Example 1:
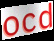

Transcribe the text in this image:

ocd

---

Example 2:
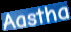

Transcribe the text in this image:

Aastha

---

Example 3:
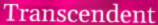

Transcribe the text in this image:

Transcendent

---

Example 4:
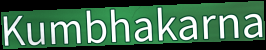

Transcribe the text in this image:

Kumbhakarna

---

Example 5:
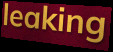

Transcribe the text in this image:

leaking